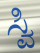
ಸ್ವಿ